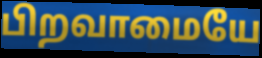
பிறவாமையே